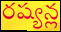
రష్యన్ల